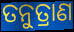
ତନୁତ୍ରାଣ